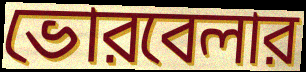
ভোরবেলার